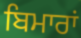
ਬਿਮਾਰਾਂ